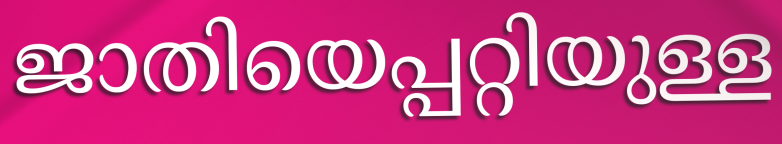
ജാതിയെപ്പറ്റിയുള്ള